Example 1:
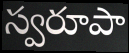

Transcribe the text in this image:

స్వరూపా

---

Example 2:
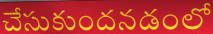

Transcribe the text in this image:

చేసుకుందనడంలో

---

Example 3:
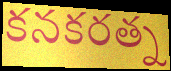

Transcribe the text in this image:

కనకరత్న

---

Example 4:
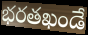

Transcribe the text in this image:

భరతఖండే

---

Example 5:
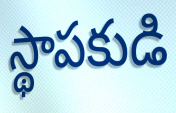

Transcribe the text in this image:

స్థాపకుడి